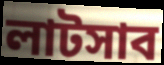
লাটসাব